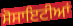
ਸੋਸਾਇਟੀਆਂ